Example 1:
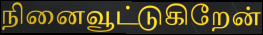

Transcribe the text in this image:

நினைவூட்டுகிறேன்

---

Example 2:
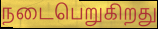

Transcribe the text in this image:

நடைபெறுகிறது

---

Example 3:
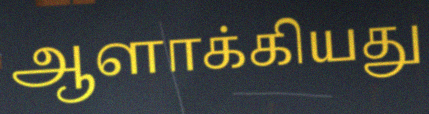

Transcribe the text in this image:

ஆளாக்கியது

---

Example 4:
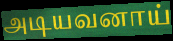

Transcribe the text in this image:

அடியவனாய்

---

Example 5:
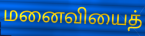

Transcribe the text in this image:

மனைவியைத்